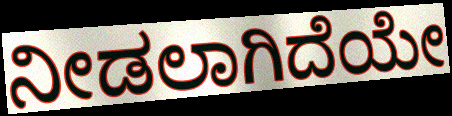
ನೀಡಲಾಗಿದೆಯೇ